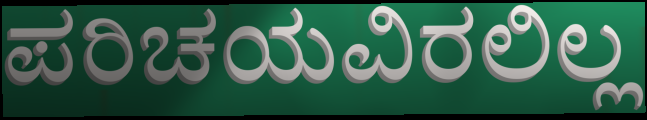
ಪರಿಚಯವಿರಲಿಲ್ಲ